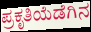
ಪ್ರಕೃತಿಯೆಡೆಗಿನ